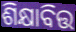
ଶିକ୍ଷାବିତ୍ତ